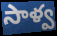
సాళ్వ